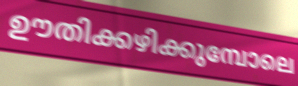
ഊതിക്കഴിക്കുമ്പോലെ